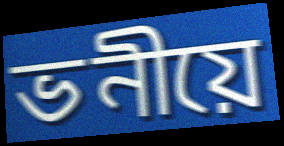
ভনীয়ে